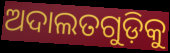
ଅଦାଲତଗୁଡ଼ିକୁ